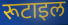
रूटाइल